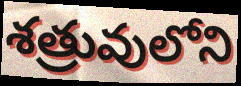
శత్రువులోని